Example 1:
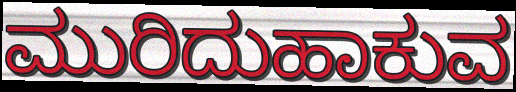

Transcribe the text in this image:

ಮುರಿದುಹಾಕುವ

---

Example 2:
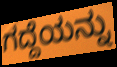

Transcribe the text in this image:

ಗದ್ದೆಯನ್ನು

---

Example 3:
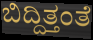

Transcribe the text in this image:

ಬಿದ್ದಿತ್ತಂತೆ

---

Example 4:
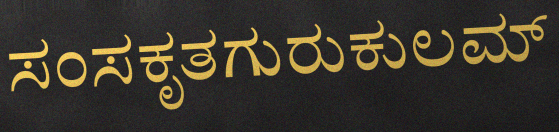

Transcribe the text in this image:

ಸಂಸಕೃತಗುರುಕುಲಮ್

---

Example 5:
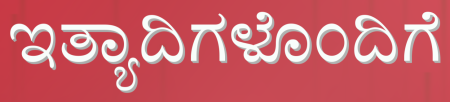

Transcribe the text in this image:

ಇತ್ಯಾದಿಗಳೊಂದಿಗೆ